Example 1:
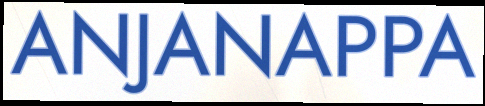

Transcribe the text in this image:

ANJANAPPA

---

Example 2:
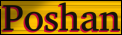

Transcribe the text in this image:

Poshan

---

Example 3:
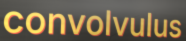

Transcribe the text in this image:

convolvulus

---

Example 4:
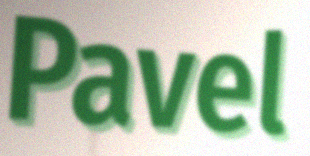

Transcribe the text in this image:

Pavel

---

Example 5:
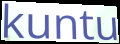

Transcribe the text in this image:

kuntu